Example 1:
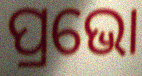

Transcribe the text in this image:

ପ୍ରଭୋ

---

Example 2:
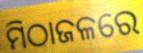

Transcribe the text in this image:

ମିଠାଜଳରେ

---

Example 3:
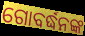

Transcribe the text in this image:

ଗୋବର୍ଦ୍ଧନଙ୍କ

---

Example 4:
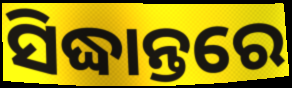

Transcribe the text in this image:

ସିଦ୍ଧାନ୍ତରେ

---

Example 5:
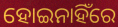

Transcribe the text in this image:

ହୋଇନାହିଁରେ